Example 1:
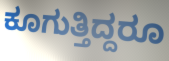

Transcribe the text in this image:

ಕೂಗುತ್ತಿದ್ದರೂ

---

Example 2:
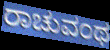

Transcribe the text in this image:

ರಾಚುವಂಥ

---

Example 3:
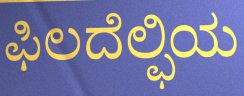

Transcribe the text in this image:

ಫಿಲದೆಲ್ಫಿಯ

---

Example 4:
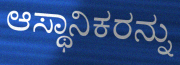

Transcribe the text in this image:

ಆಸ್ಥಾನಿಕರನ್ನು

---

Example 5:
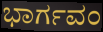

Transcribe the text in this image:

ಭಾರ್ಗವಂ